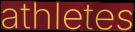
athletes